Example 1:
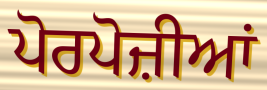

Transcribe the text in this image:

ਪੋਰਪੋਜ਼ੀਆਂ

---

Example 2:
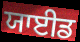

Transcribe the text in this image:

ਯਾਈਡ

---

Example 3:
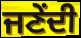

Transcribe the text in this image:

ਜਣੇਂਦੀ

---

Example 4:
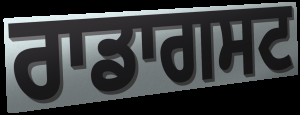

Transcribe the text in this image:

ਰਾਡਾਗਸਟ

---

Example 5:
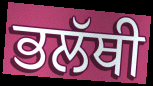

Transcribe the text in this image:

ਭਲੱਥੀ